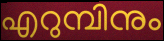
എറുമ്പിനും